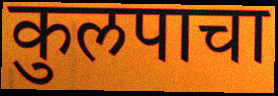
कुलपाचा